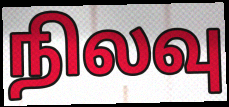
நிலவு